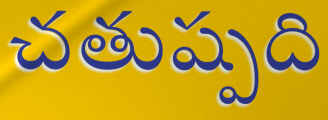
చతుష్పది